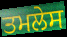
ਤਮਲੇਸ